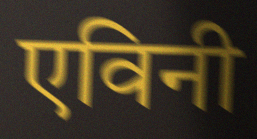
एविनी